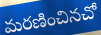
మరణించినచో